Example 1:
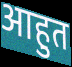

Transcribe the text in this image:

आहुत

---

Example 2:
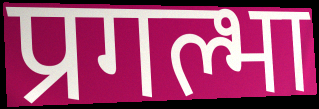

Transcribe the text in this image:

प्रगल्भा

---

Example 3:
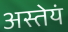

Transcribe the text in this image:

अस्तेयं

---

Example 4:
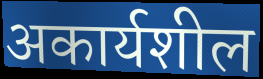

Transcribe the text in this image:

अकार्यशील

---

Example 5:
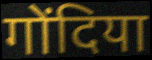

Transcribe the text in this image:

गोंदिया